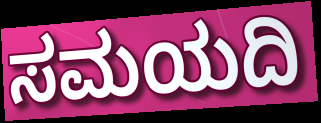
ಸಮಯದಿ